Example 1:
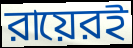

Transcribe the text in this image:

রায়েরই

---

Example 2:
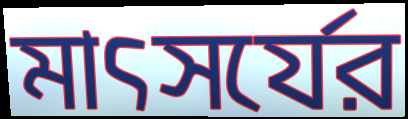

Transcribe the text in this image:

মাৎসর্যের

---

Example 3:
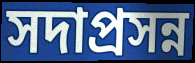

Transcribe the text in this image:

সদাপ্রসন্ন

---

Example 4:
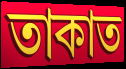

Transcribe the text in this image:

তাকাত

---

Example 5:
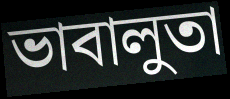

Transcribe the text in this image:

ভাবালুতা